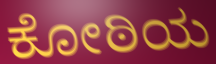
ಕೋಠಿಯ